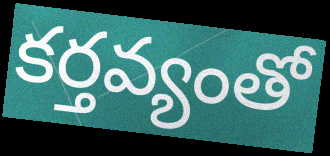
కర్తవ్యంతో